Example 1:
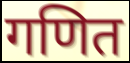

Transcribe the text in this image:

गणित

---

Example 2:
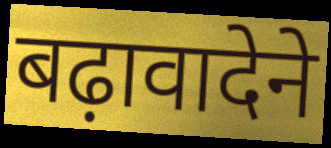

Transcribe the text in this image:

बढ़ावादेने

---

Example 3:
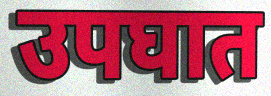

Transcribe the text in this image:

उपघात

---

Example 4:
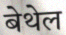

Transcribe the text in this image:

बेथेल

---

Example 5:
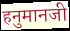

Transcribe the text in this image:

हनुमानजी